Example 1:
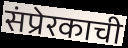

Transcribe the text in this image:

संप्रेरकाची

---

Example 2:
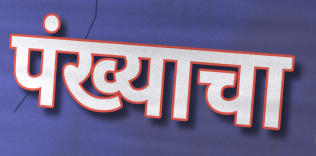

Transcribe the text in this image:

पंख्याचा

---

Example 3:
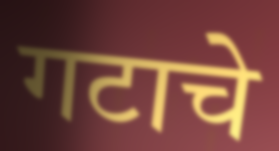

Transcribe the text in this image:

गटाचे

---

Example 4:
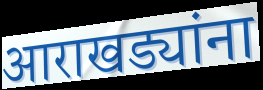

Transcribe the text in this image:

आराखड्यांना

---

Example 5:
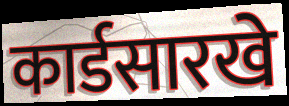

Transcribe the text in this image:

कार्डसारखे